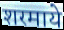
शरमाये